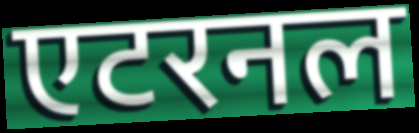
एटरनल